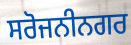
ਸਰੋਜਨੀਨਗਰ